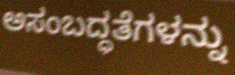
ಅಸಂಬದ್ಧತೆಗಳನ್ನು